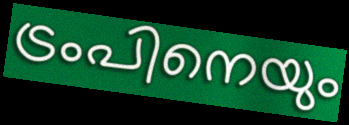
ട്രംപിനെയും